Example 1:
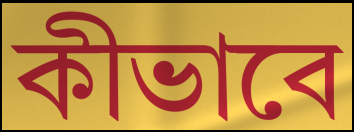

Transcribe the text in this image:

কীভাবে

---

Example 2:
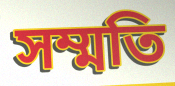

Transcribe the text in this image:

সম্মতি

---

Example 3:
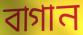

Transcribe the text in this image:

বাগান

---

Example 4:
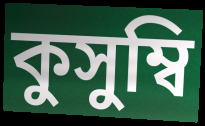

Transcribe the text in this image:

কুসুম্বি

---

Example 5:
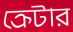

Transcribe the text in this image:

ক্রেটার